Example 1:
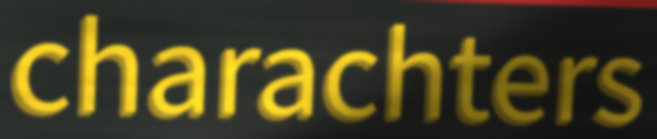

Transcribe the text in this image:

charachters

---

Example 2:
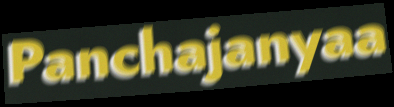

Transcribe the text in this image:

Panchajanyaa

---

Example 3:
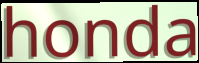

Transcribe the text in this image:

honda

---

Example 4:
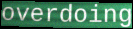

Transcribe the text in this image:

overdoing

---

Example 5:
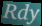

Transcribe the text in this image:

Rdy